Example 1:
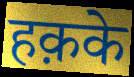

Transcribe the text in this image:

हक़के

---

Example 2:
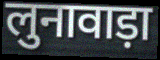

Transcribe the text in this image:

लुनावाड़ा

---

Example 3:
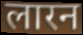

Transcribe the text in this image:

लारन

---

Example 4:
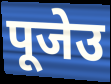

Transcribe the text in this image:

पूजेउ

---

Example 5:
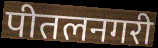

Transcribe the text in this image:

पीतलनगरी